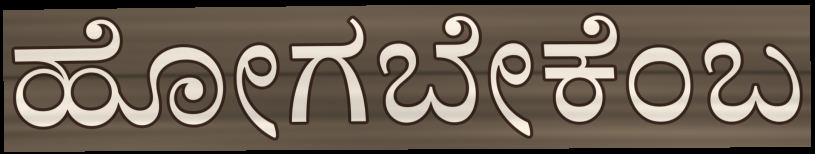
ಹೋಗಬೇಕೆಂಬ